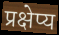
प्रक्षेप्य